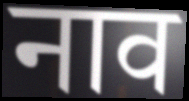
नाव